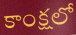
కాంక్షలో